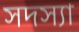
সদস্যা